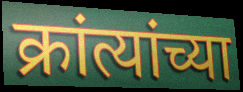
क्रांत्यांच्या